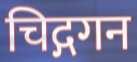
चिद्गगन